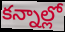
కన్నాల్లో